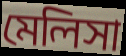
মেলিসা